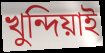
খুন্দিয়াই